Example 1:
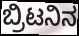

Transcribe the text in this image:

ಬ್ರಿಟನಿನ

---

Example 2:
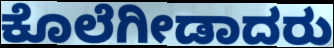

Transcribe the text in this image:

ಕೊಲೆಗೀಡಾದರು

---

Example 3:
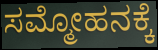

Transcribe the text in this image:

ಸಮ್ಮೋಹನಕ್ಕೆ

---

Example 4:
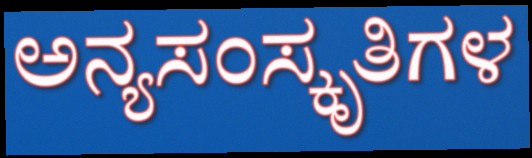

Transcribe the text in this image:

ಅನ್ಯಸಂಸ್ಕೃತಿಗಳ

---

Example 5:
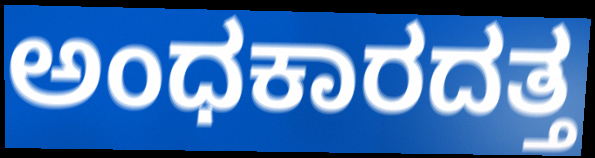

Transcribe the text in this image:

ಅಂಧಕಾರದತ್ತ